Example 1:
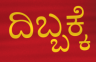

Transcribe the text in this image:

ದಿಬ್ಬಕ್ಕೆ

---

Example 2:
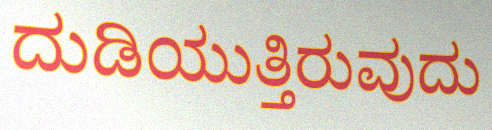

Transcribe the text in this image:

ದುಡಿಯುತ್ತಿರುವುದು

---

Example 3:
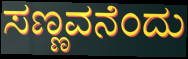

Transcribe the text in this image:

ಸಣ್ಣವನೆಂದು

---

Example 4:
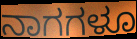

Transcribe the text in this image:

ನಾಗಗಳೂ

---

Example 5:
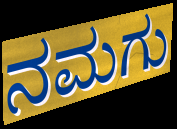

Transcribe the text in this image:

ನಮಗು